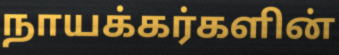
நாயக்கர்களின்